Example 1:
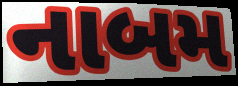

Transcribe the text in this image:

નાબમ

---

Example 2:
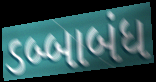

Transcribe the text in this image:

ડબ્બાબંધ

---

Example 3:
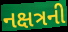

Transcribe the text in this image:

નક્ષત્રની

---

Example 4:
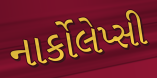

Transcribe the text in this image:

નાર્કોલેપ્સી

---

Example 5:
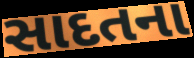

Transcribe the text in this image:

સાદતના